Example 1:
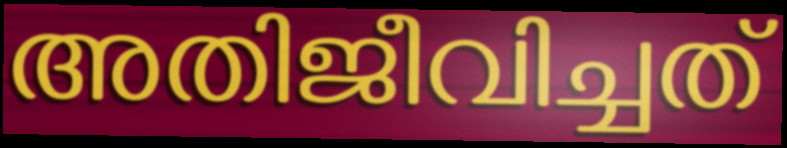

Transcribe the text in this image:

അതിജീവിച്ചത്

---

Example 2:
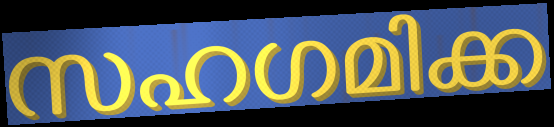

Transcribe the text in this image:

സഹഗമിക്ക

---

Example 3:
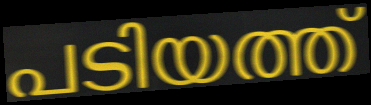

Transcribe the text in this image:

പടിയത്ത്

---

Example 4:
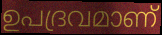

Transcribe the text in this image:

ഉപദ്രവമാണ്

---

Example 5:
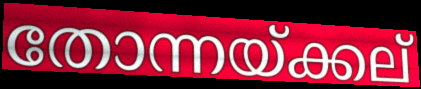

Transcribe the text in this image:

തോന്നയ്ക്കല്